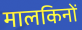
मालकिनों